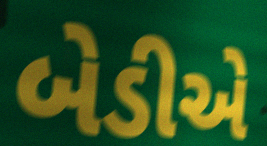
બેડીએ